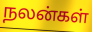
நலன்கள்